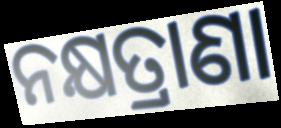
ନକ୍ଷତ୍ରାଣା